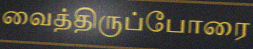
வைத்திருப்போரை